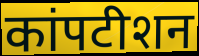
कांपटीशन